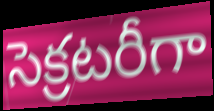
సెక్రటరీగా